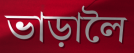
ভাড়ালৈ